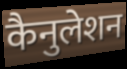
कैनुलेशन